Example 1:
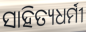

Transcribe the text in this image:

ସାହିତ୍ୟଧର୍ମୀ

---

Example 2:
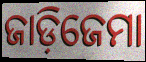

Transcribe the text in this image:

ଜାଡ଼ିଜେମା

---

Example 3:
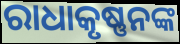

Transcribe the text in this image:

ରାଧାକୃଷ୍ଣନଙ୍କ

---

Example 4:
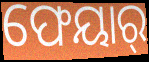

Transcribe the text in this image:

ଫେୟାର୍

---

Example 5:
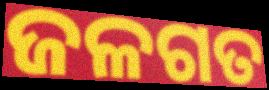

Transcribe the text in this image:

ଜଳଗତ